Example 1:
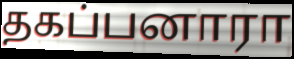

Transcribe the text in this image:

தகப்பனாரா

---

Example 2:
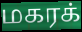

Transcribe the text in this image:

மகரக்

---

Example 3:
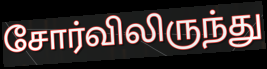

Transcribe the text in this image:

சோர்விலிருந்து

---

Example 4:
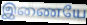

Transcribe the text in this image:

இணையே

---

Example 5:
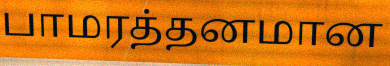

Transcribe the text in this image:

பாமரத்தனமான